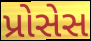
પ્રોસેસ